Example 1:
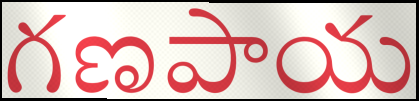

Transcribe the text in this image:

గణపాయ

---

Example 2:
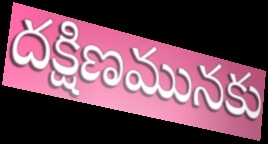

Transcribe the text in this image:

దక్షిణమునకు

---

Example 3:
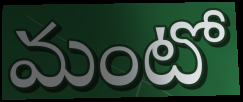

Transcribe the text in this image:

మంటో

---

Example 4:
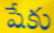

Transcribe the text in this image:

షేకు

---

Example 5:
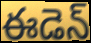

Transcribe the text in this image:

ఈడెన్